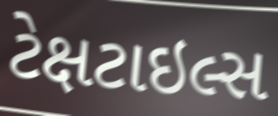
ટેક્ષટાઇલ્સ